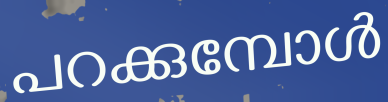
പറക്കുമ്പോൾ